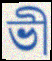
ভী